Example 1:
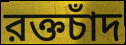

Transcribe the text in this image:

রক্তচাঁদ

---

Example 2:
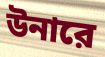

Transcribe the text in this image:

উনারে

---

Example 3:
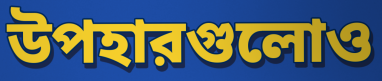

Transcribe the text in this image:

উপহারগুলোও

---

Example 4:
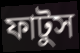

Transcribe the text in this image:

ফাটুস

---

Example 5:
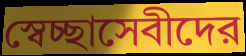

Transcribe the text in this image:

স্বেচ্ছাসেবীদের